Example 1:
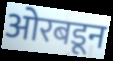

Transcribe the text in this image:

ओरबडून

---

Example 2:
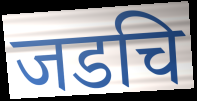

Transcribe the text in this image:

जडचि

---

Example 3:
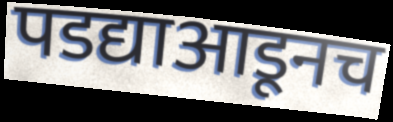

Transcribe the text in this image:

पडद्याआडूनच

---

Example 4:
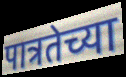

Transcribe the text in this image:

पात्रतेच्या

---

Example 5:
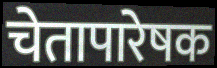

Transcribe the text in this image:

चेतापारेषक